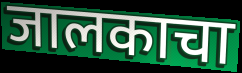
जालकाचा